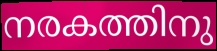
നരകത്തിനു